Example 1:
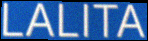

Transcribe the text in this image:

LALITA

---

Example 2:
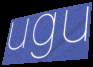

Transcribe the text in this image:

ugu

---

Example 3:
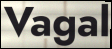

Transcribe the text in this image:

Vagal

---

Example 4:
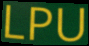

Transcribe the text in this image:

LPU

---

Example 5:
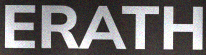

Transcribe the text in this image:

ERATH